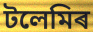
টলেমিৰ